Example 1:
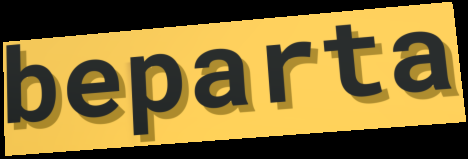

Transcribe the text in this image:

beparta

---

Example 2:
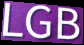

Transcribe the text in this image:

LGB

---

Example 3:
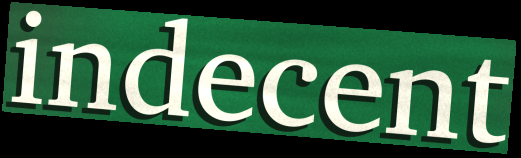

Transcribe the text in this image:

indecent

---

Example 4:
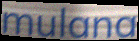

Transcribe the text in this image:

mulana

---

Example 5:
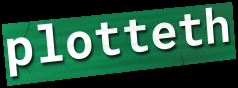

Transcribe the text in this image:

plotteth